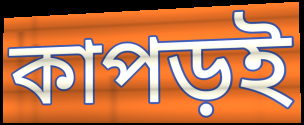
কাপড়ই